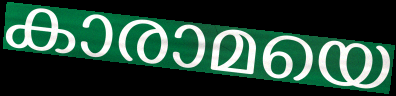
കാരാമയെ